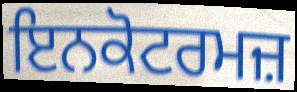
ਇਨਕੋਟਰਮਜ਼